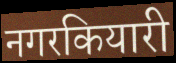
नगरकियारी